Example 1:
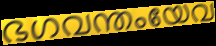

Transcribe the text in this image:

ഭഗവന്തംയേവ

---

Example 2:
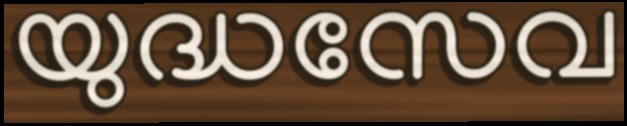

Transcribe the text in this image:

യുദ്ധസേവ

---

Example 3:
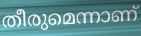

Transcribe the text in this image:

തീരുമെന്നാണ്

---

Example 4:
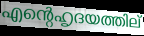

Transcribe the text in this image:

എന്റെഹൃദയത്തില്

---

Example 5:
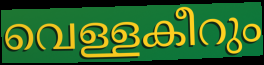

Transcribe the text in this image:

വെള്ളകീറും